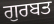
ਗੁਰਬਤ